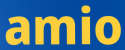
amio